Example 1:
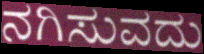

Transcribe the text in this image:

ನಗಿಸುವದು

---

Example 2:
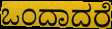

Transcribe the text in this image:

ಒಂದಾದರೆ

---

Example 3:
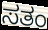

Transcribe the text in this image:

ಸತಂ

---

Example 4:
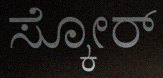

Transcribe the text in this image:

ಸ್ಕೋರ್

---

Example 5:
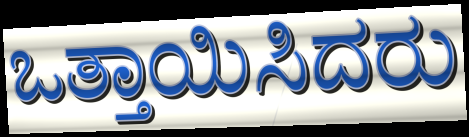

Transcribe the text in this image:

ಒತ್ತಾಯಿಸಿದರು